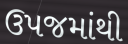
ઉપજમાંથી